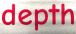
depth